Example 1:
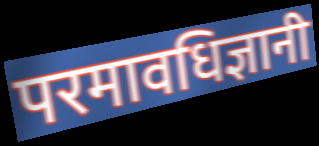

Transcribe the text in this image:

परमावधिज्ञानी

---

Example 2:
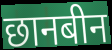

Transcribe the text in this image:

छानबीन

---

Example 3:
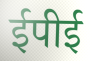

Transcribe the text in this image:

ईपीई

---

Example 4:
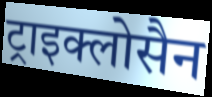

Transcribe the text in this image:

ट्राइक्लोसैन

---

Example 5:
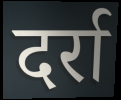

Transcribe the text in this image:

दर्रा